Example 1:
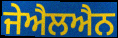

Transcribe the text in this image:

ਜੇਐਲਐਨ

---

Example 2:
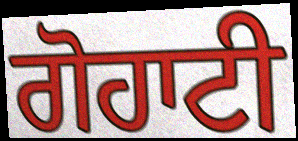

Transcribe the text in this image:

ਗੋਹਾਟੀ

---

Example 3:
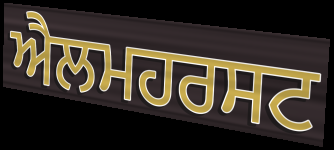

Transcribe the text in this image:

ਐਲਮਹਰਸਟ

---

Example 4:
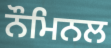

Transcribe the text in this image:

ਨੌਮਿਨਲ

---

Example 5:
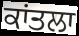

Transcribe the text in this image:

ਕਾਂਤਲਾ